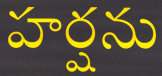
హర్షను